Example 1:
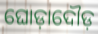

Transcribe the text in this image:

ଘୋଡ଼ାଦୌଡ଼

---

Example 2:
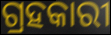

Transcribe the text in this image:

ଗ୍ରହକାରୀ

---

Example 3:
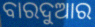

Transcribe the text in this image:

ବାରଦୁଆର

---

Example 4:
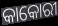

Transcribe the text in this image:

କାକୋରୀ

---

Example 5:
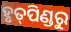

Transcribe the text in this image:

ହୃତ୍‌ପିଣ୍ଡରୁ